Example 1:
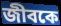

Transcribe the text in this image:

জীবকে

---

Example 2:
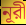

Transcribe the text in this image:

নূরী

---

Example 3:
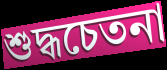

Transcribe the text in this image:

শুদ্ধচেতনা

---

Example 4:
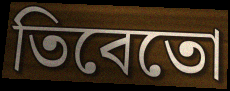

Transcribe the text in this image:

তিবেতো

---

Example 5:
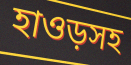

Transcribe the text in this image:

হাওড়সহ